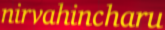
nirvahincharu